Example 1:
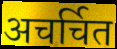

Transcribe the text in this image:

अचर्चित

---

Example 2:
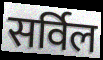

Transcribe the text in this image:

सर्विल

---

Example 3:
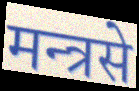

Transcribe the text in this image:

मन्त्रसे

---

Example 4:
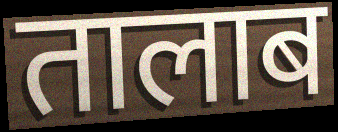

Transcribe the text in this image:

तालाब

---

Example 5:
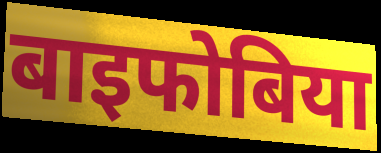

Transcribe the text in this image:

बाइफोबिया